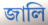
জালি